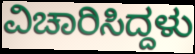
ವಿಚಾರಿಸಿದ್ದಳು